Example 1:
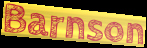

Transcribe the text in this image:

Barnson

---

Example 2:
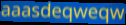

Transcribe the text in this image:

aaasdeqweqw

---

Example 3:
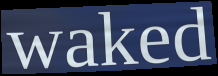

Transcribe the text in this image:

waked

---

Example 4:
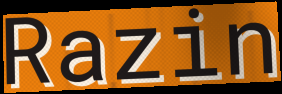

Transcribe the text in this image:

Razin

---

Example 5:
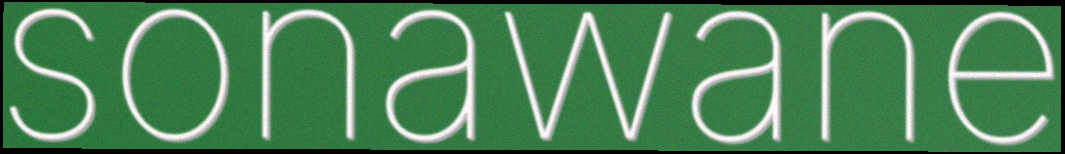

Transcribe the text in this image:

sonawane